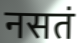
नसतं